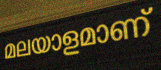
മലയാളമാണ്